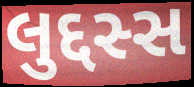
લુદ્દસ્સ